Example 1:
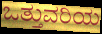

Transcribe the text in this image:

ಒತ್ತುವರಿಯ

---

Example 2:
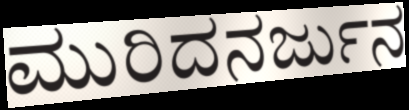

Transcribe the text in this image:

ಮುರಿದನರ್ಜುನ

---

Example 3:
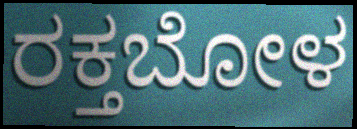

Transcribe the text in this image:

ರಕ್ತಬೋಳ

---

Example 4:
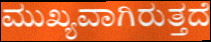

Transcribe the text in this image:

ಮುಖ್ಯವಾಗಿರುತ್ತದೆ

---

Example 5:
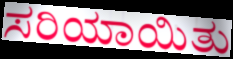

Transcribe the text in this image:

ಸರಿಯಾಯಿತು